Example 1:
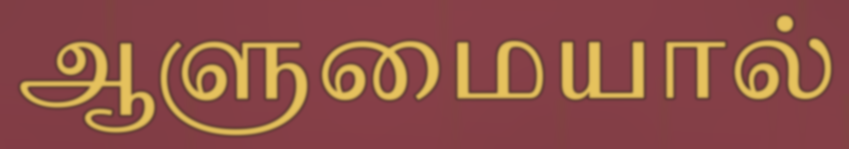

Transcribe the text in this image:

ஆளுமையால்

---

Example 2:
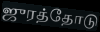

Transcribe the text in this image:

ஜுரத்தோடு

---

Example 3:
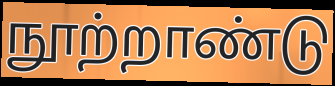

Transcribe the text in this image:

நூற்றாண்டு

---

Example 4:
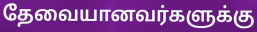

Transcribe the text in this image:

தேவையானவர்களுக்கு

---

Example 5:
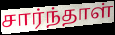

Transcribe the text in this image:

சார்ந்தாள்